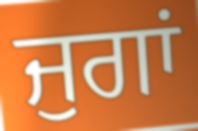
ਜੁਗਾਂ